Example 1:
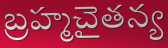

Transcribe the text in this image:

బ్రహ్మచైతన్య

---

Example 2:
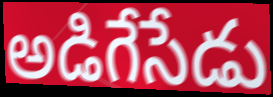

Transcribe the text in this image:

అడిగేసేడు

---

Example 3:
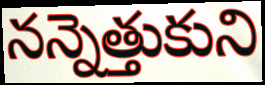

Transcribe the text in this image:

నన్నెత్తుకుని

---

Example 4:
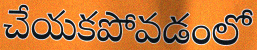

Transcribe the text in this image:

చేయకపోవడంలో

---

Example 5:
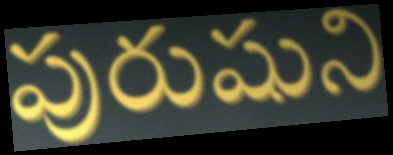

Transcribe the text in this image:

పురుషుని